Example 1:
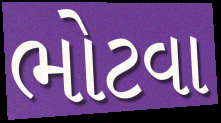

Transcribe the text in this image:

ભોટવા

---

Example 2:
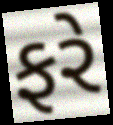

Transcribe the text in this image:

ફરે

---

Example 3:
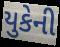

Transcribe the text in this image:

યુકેની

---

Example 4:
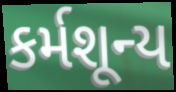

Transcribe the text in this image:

કર્મશૂન્ય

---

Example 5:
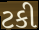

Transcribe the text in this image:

ટકી